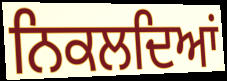
ਨਿਕਲਦਿਆਂ